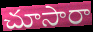
చూసారా